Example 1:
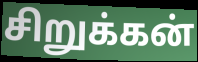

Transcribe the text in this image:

சிறுக்கன்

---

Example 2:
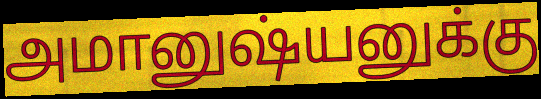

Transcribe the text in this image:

அமானுஷ்யனுக்கு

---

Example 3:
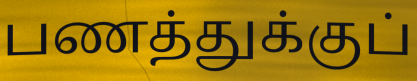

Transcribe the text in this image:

பணத்துக்குப்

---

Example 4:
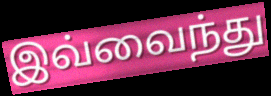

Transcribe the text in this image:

இவ்வைந்து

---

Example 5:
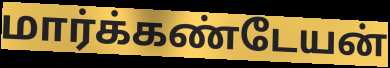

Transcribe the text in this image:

மார்க்கண்டேயன்